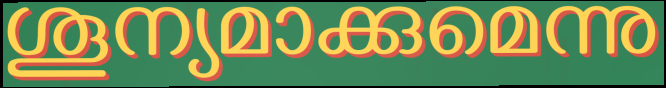
ശൂന്യമാക്കുമെന്നു